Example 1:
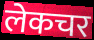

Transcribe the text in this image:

लेकचर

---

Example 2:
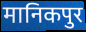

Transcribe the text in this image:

मानिकपुर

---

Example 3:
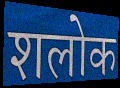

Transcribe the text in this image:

शलोक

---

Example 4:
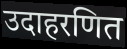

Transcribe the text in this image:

उदाहरणित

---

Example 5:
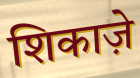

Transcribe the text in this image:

शिकाज़े